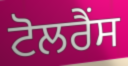
ਟੋਲਰੈਂਸ